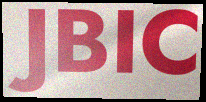
JBIC